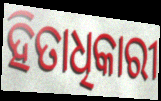
ହିତାଧିକାରୀ